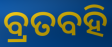
ବ୍ରତବହି